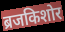
ब्रजकिशोर